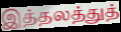
இத்தலத்துத்